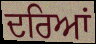
ਦਰਿਆਂ